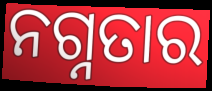
ନଗ୍ନତାର